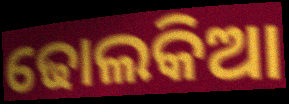
ଢୋଲକିଆ